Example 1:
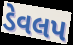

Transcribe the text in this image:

ડેવલપ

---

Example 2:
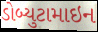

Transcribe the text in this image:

ડોબ્યુટામાઇન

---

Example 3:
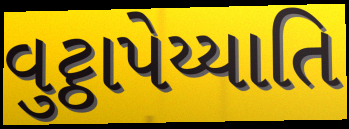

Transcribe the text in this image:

વુટ્ઠાપેય્યાતિ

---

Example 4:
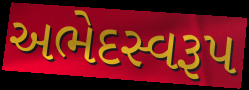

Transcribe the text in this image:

અભેદસ્વરૂપ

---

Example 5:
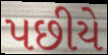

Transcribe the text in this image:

પછીયે